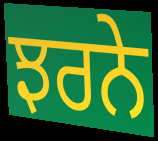
ਝਰਨੇ